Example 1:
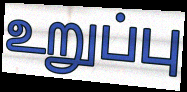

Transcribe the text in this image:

உறுப்பு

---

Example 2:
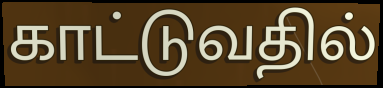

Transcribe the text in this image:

காட்டுவதில்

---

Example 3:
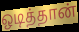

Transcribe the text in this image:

ஒடித்தான்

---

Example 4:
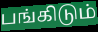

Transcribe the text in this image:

பங்கிடும்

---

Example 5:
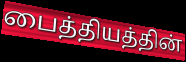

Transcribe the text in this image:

பைத்தியத்தின்